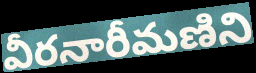
వీరనారీమణిని